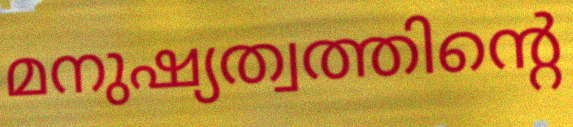
മനുഷ്യത്വത്തിന്റെ